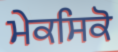
ਮੇਕਸਿਕੋ